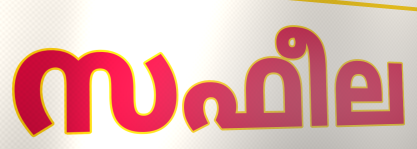
സഫീല